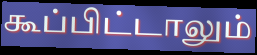
கூப்பிட்டாலும்